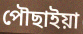
পৌছাইয়া